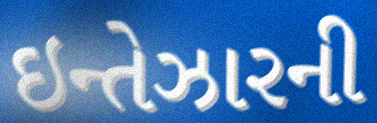
ઇન્તેઝારની